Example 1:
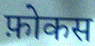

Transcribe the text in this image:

फ़ोकस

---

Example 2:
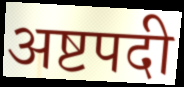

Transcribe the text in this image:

अष्टपदी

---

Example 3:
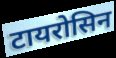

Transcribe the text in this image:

टायरोसिन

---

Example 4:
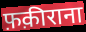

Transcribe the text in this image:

फ़क़ीराना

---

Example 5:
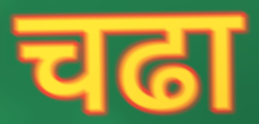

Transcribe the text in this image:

चढा